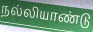
நல்லியாண்டு